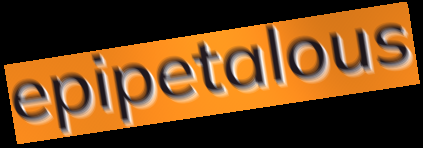
epipetalous